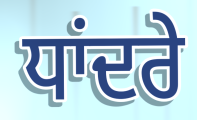
ਧਾਂਦਰੇ